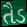
તૈડ